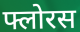
फ्लोरस